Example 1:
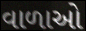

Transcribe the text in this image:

વાળાઓ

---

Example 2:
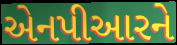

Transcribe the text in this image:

એનપીઆરને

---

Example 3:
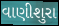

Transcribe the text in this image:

વાણીશુરા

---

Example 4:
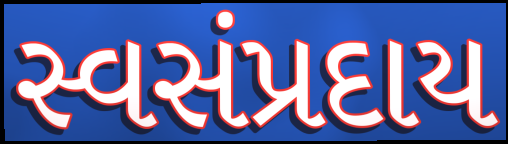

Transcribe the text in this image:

સ્વસંપ્રદાય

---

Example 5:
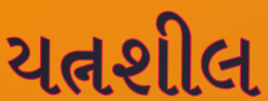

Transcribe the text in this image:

યત્નશીલ